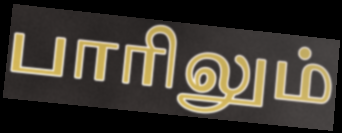
பாரிலும்